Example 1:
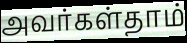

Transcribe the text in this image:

அவர்கள்தாம்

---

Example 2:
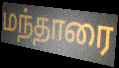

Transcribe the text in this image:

மந்தாரை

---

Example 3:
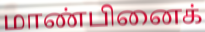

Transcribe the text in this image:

மாண்பினைக்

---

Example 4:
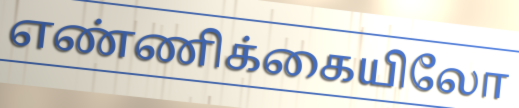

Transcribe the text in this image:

எண்ணிக்கையிலோ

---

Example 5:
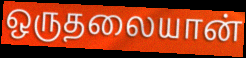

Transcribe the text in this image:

ஒருதலையான்